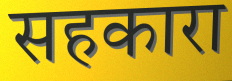
सहकारा